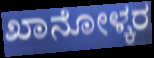
ಖಾನೋಳ್ಕರ